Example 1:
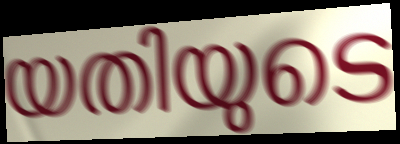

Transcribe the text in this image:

യതിയുടെ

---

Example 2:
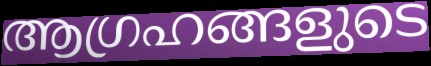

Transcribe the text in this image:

ആഗ്രഹങ്ങളുടെ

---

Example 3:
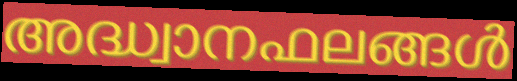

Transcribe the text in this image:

അദ്ധ്വാനഫലങ്ങൾ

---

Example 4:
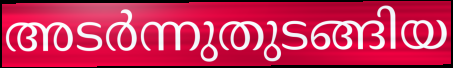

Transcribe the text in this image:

അടർന്നുതുടങ്ങിയ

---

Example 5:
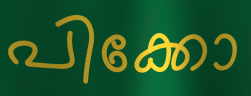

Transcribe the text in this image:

പിക്കോ